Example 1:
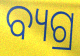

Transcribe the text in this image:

ବ୍ୟଗ୍ର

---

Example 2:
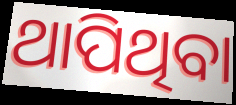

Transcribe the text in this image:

ଥାପିଥିବା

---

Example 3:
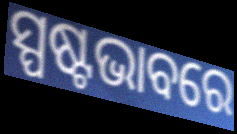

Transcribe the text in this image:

ସ୍ପଷ୍ଟଭାବରେ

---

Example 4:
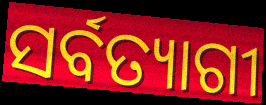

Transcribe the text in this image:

ସର୍ବତ୍ୟାଗୀ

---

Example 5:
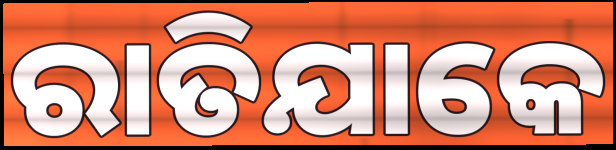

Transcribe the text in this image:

ରାତିଯାକେ